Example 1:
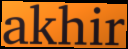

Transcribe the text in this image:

akhir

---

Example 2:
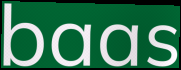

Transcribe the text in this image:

baas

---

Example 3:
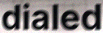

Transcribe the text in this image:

dialed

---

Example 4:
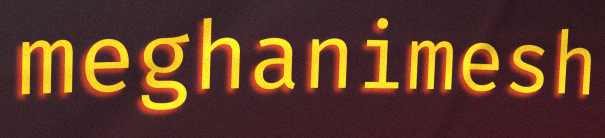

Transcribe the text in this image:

meghanimesh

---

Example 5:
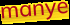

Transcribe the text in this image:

manye